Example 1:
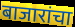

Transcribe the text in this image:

बाजारांचा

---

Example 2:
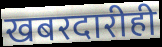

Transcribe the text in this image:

खबरदारीही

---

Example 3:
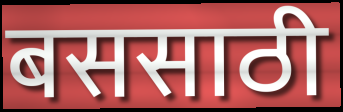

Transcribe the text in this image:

बससाठी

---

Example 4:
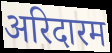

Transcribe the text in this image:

अरिदारम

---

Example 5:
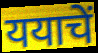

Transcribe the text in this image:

ययाचें